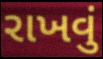
રાખવું